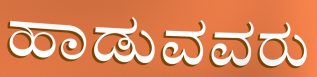
ಹಾಡುವವರು